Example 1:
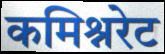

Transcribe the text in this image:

कमिश्नरेट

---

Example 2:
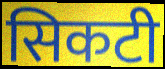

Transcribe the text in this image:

सिकटी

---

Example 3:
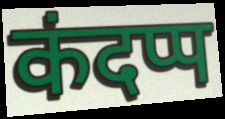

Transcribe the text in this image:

कंदप्प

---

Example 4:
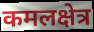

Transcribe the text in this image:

कमलक्षेत्र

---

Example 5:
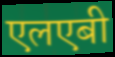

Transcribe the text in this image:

एलएबी